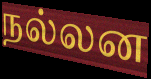
நல்லன